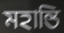
মহান্তি